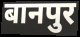
बानपुर